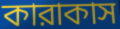
কারাকাস